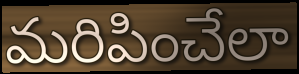
మరిపించేలా